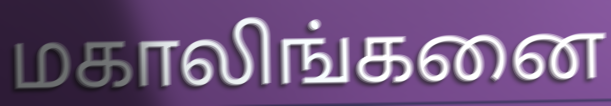
மகாலிங்கனை